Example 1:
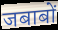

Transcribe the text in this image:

जबाबों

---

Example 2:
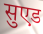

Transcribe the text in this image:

सुएड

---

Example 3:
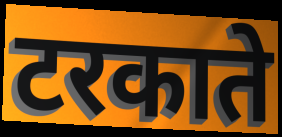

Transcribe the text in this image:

टरकाते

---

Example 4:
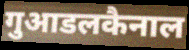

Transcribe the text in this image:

गुआडलकैनाल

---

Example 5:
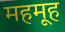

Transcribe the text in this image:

महमूह